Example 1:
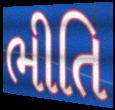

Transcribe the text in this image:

ભીતિ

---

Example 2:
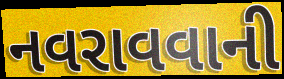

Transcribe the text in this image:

નવરાવવાની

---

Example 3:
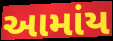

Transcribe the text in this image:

આમાંય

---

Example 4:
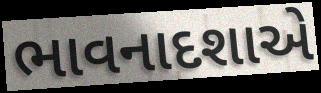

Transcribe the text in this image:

ભાવનાદશાએ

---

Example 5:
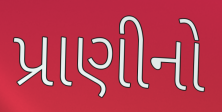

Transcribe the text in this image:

પ્રાણીનો